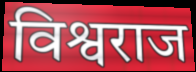
विश्वराज